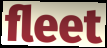
fleet